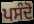
ਪਸੰਦੋ